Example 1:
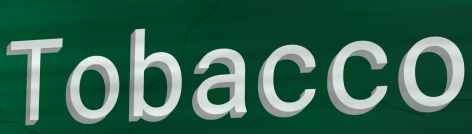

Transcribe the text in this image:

Tobacco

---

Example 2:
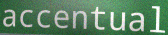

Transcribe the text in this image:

accentual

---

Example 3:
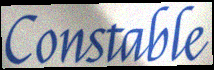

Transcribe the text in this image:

Constable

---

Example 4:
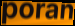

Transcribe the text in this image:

poran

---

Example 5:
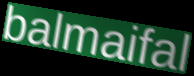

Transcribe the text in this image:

balmaifal